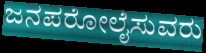
ಜನಪರೋಲೈಸುವರು